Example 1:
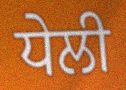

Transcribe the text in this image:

ਧੇਲੀ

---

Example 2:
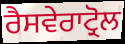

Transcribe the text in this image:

ਰੈਸਵੇਰਾਟ੍ਰੋਲ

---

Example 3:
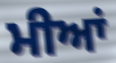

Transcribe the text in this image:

ਮੀਆਂ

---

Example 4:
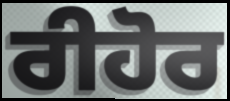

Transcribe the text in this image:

ਰੀਹੋਰ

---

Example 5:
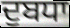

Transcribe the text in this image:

ਦੁਬਧਾ